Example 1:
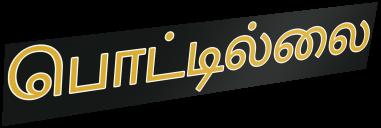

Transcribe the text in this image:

பொட்டில்லை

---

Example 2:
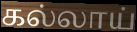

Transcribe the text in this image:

கல்லாய்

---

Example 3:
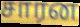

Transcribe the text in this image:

சாரன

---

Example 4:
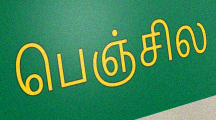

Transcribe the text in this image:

பெஞ்சில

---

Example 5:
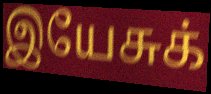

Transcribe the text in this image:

இயேசுக்